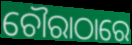
ଚୌରାଠାରେ